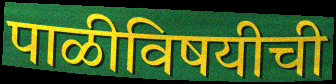
पाळीविषयीची